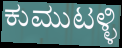
ಕುಮುಟಳ್ಳಿ